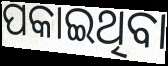
ପକାଇଥିବା